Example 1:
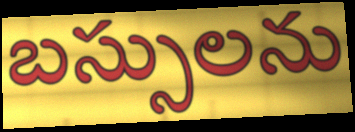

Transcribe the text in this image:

బస్సులను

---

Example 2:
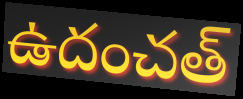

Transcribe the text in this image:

ఉదంచత్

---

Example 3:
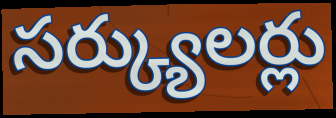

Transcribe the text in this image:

సర్క్యులర్లు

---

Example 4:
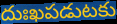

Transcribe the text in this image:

దుఃఖపడుటకు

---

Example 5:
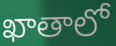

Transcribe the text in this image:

ఖాతాలో